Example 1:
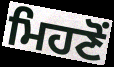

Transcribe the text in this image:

ਮਿਹਣੋਂ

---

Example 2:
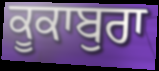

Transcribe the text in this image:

ਕੂਕਾਬੁਰਾ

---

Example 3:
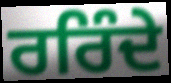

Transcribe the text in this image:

ਰਰਿੰਦੇ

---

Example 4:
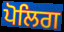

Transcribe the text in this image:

ਪੋਲਿਗ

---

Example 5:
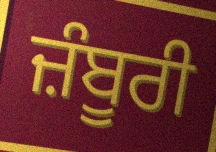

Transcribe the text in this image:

ਜ਼ੰਬੂਰੀ